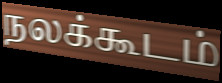
நலக்கூடம்